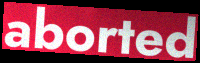
aborted